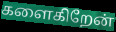
களைகிறேன்